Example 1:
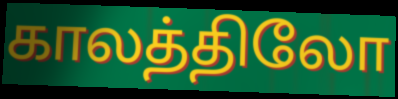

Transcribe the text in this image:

காலத்திலோ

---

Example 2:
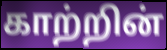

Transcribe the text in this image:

காற்றின்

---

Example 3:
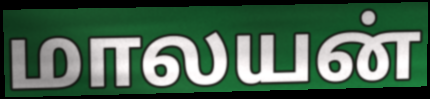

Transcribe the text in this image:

மாலயன்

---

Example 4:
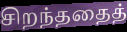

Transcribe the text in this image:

சிறந்ததைத்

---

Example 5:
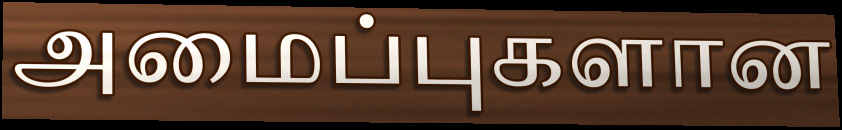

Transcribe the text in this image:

அமைப்புகளான